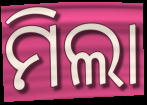
ମିଲା